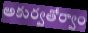
అకుర్వతోర్వాం